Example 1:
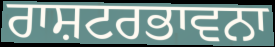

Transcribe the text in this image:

ਰਾਸ਼ਟਰਭਾਵਨਾ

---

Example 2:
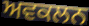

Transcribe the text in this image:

ਅਵਕਲਨ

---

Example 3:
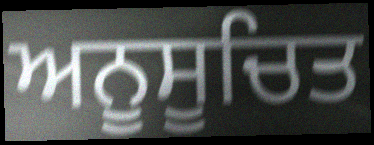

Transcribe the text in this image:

ਅਨੂਸੂਚਿਤ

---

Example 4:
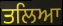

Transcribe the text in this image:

ਤਲਿਆ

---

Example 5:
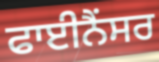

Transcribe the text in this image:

ਫਾਈਨੈਂਸਰ